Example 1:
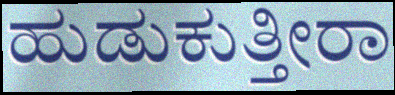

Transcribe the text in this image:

ಹುಡುಕುತ್ತೀರಾ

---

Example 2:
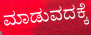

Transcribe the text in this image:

ಮಾಡುವದಕ್ಕೆ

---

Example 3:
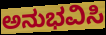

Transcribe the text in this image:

ಅನುಭವಿಸಿ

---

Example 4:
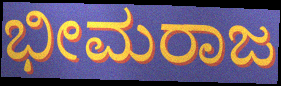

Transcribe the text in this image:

ಭೀಮರಾಜ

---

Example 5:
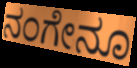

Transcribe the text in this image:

ನಂಗೇನೂ